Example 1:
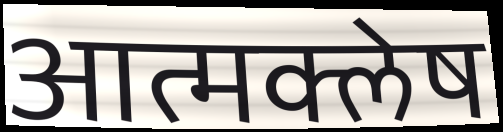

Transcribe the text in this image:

आत्मक्लेष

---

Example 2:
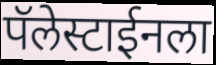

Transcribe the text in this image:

पॅलेस्टाईनला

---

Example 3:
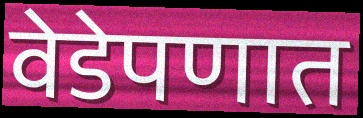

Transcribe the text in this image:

वेडेपणात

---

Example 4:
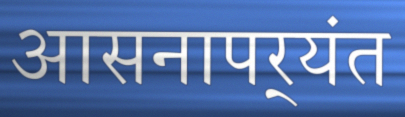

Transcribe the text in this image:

आसनापर्यंत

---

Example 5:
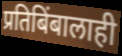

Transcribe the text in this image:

प्रतिबिंबालाही